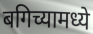
बगिच्यामध्ये